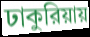
ঢাকুরিয়ায়